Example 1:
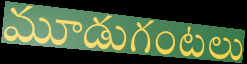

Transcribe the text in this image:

మూడుగంటలు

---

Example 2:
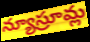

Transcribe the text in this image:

న్యూస్రూమ్ల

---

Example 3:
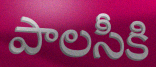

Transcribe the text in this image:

పాలసీకి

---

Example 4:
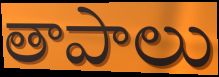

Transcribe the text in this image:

తాపాలు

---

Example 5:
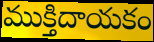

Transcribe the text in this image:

ముక్తిదాయకం